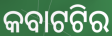
କବାଟଟିର